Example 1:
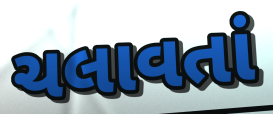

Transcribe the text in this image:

ચલાવતાં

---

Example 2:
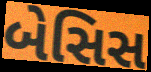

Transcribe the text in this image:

બેસિસ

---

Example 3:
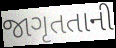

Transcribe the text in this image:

જાગૃતતાની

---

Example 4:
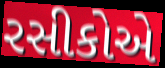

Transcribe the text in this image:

રસીકોએ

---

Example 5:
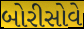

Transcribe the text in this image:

બોરીસોવે